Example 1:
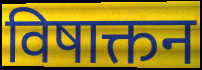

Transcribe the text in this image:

विषाक्तन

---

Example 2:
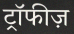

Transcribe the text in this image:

ट्रॉफीज़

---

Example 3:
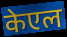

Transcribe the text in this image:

केएल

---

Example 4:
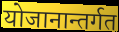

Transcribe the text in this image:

योजानान्तर्गत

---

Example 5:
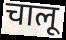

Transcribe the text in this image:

चालू